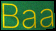
Baa